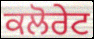
ਕਲੋਰੇਟ